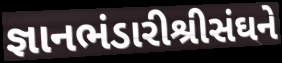
જ્ઞાનભંડારીશ્રીસંઘને